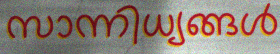
സാന്നിധ്യങ്ങൾ